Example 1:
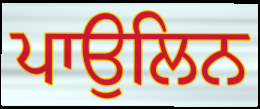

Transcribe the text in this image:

ਪਾਉਲਿਨ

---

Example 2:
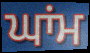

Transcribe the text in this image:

ਘਾਂਮ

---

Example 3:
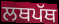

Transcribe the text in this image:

ਲਥਪੱਥ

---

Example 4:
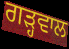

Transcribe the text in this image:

ਗੜ੍ਹਵਾਲ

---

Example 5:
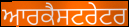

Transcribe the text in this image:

ਆਰਕੈਸਟਰੇਟਰ